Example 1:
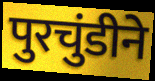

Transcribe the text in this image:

पुरचुंडीने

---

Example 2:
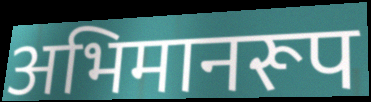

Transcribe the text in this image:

अभिमानरूप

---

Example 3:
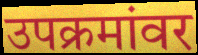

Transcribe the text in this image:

उपक्रमांवर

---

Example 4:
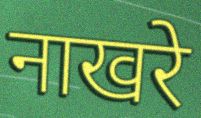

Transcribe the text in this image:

नाखरे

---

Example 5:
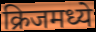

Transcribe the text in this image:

क्रिजमध्ये